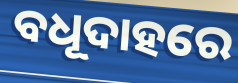
ବଧୂଦାହରେ